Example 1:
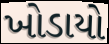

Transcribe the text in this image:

ખોડાયો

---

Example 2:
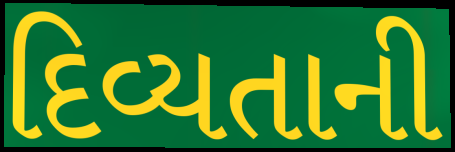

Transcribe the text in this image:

દિવ્યતાની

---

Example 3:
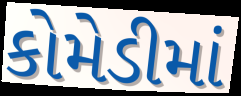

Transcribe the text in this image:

કોમેડીમાં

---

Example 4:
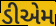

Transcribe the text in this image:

ડીએમ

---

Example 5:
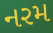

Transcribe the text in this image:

નરમ